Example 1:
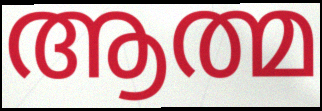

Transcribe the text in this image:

ആത്മ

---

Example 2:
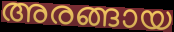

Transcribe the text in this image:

അരങ്ങായ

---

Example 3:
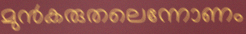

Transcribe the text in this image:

മുൻകരുതലെന്നോണം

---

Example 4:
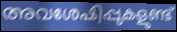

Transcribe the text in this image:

അവശേഷിപ്പുകളുണ്ട്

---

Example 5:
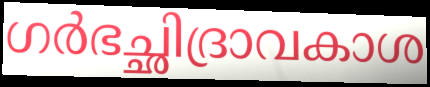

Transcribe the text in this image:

ഗർഭച്ഛിദ്രാവകാശ